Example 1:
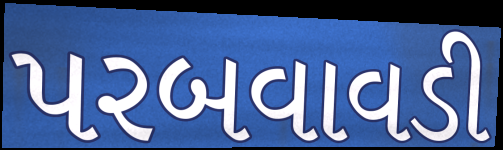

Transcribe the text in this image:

પરબવાવડી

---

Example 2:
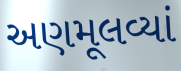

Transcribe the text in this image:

અણમૂલવ્યાં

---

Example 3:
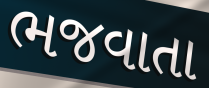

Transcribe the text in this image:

ભજવાતા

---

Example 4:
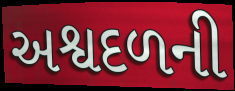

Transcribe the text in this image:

અશ્વદળની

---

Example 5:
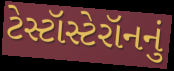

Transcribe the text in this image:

ટેસ્ટૉસ્ટેરૉનનું